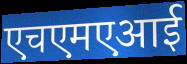
एचएमएआई